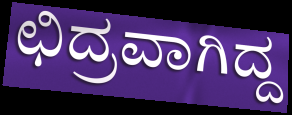
ಛಿದ್ರವಾಗಿದ್ದ